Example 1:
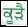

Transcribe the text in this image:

ਕੂੜੈ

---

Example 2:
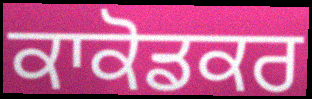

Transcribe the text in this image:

ਕਾਕੋਡਕਰ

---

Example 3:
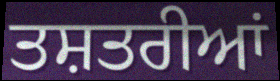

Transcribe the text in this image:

ਤਸ਼ਤਰੀਆਂ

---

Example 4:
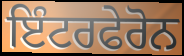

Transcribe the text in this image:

ਇੰਟਰਫੇਰੋਨ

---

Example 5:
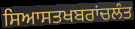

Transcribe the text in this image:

ਸਿਆਸਤਖਬਰਾਂਚਲੰਤ